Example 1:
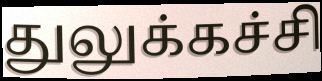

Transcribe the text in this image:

துலுக்கச்சி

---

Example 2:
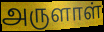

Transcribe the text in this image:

அருளாள்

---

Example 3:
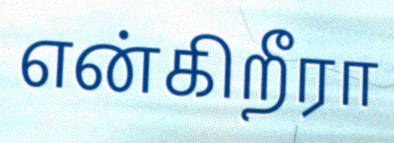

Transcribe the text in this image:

என்கிறீரா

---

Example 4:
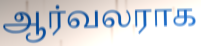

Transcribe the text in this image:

ஆர்வலராக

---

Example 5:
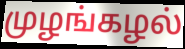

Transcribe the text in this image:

முழங்கழல்